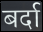
बर्दा